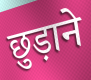
छुड़ाने